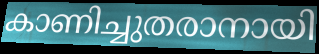
കാണിച്ചുതരാനായി